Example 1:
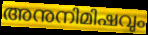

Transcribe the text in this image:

അനുനിമിഷവും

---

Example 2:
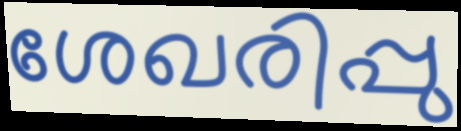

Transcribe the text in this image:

ശേഖരിപ്പു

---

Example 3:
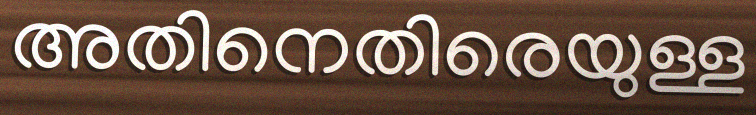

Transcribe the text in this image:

അതിനെതിരെയുള്ള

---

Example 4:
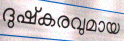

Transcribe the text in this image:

ദുഷ്കരവുമായ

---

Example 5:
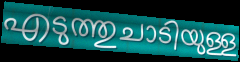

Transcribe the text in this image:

എടുത്തുചാടിയുള്ള